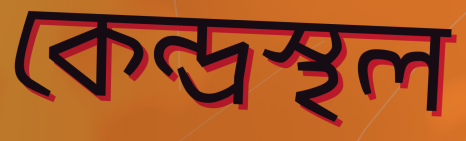
কেন্দ্ৰস্থল